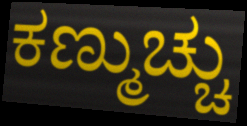
ಕಣ್ಮುಚ್ಚು